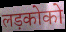
लड़कोको